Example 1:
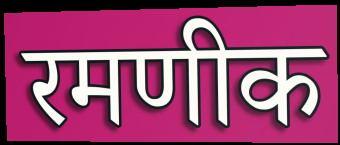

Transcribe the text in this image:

रमणीक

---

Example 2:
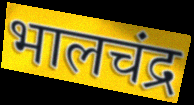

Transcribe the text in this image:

भालचंद्र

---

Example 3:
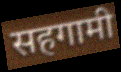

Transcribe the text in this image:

सहगामी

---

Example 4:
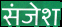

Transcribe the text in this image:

संजेश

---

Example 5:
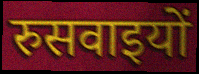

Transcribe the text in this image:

रुसवाइयों